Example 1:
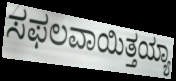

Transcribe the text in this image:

ಸಫಲವಾಯಿತ್ತಯ್ಯಾ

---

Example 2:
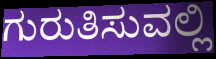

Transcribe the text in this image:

ಗುರುತಿಸುವಲ್ಲಿ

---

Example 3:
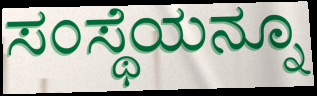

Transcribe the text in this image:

ಸಂಸ್ಥೆಯನ್ನೂ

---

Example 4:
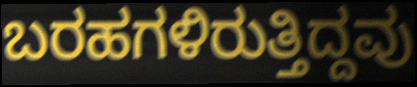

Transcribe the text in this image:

ಬರಹಗಳಿರುತ್ತಿದ್ದವು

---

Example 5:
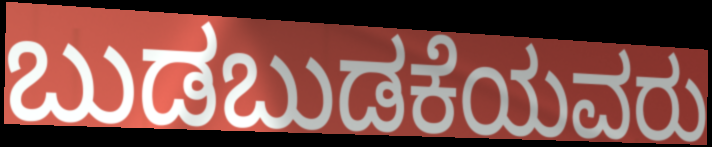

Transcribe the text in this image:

ಬುಡಬುಡಕೆಯವರು